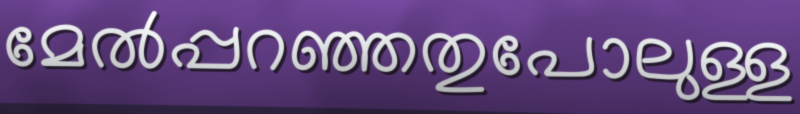
മേൽപ്പറഞ്ഞതുപോലുള്ള